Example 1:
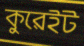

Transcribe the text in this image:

কুৱেইট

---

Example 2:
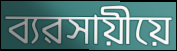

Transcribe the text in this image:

ব্যৱসায়ীয়ে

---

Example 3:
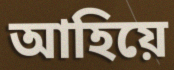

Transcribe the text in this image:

আহিয়ে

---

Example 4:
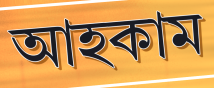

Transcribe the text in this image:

আহকাম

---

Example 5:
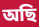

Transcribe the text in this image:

অছি